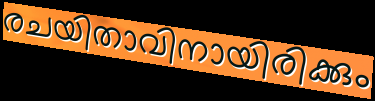
രചയിതാവിനായിരിക്കും